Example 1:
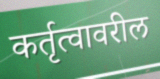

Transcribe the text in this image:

कर्तृत्वावरील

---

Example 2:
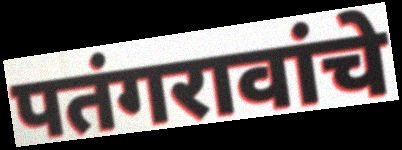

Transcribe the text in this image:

पतंगरावांचे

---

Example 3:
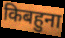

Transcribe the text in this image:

किबहुना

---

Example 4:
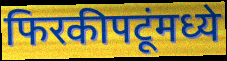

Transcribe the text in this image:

फिरकीपटूंमध्ये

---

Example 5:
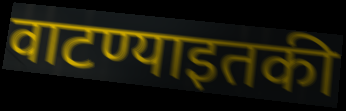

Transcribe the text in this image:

वाटण्याइतकी